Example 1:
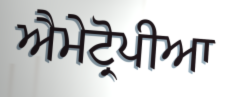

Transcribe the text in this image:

ਐਮੇਟ੍ਰੋਪੀਆ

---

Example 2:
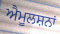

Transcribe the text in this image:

ਐਮੂਲਸ਼ਨਾਂ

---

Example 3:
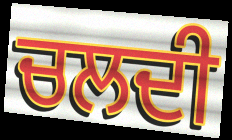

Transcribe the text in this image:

ਚਲਦੀ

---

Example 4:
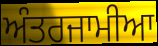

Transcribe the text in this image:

ਅੰਤਰਜਾਮੀਆ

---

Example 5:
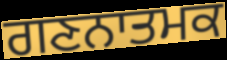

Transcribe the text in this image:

ਗਣਨਾਤਮਕ